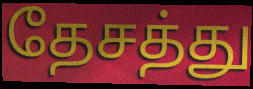
தேசத்து